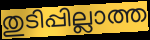
തുടിപ്പില്ലാത്ത